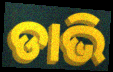
ଡାଭି